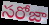
సరోజా